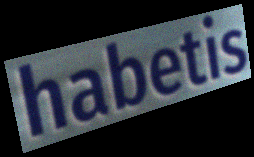
habetis